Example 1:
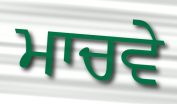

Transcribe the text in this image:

ਮਾਚਵੇ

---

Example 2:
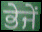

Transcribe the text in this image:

ਭੇਜੇਂ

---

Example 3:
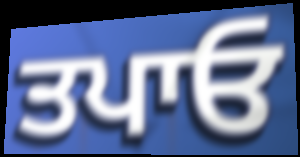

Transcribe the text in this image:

ਤਪਾਓ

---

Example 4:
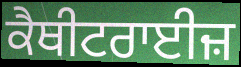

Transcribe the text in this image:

ਕੈਥੀਟਰਾਈਜ਼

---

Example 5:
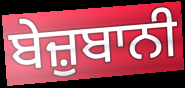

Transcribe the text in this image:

ਬੇਜ਼ੁਬਾਨੀ